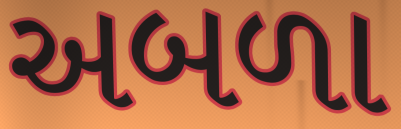
અબળા